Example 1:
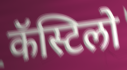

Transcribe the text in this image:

कॅस्टिलो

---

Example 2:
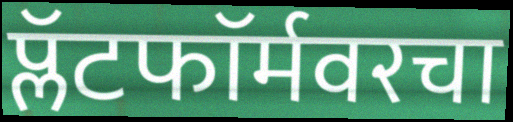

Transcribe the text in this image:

प्लॅटफॉर्मवरचा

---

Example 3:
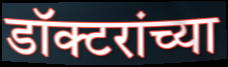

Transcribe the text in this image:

डॉक्‍टरांच्या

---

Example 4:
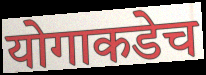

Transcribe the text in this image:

योगाकडेच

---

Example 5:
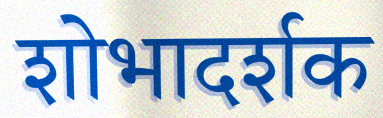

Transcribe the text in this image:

शोभादर्शक